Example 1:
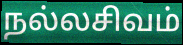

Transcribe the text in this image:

நல்லசிவம்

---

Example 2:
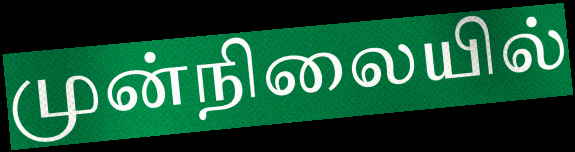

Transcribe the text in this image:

முன்நிலையில்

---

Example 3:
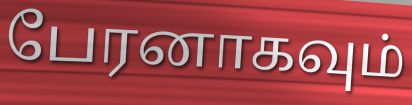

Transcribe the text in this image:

பேரனாகவும்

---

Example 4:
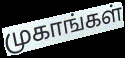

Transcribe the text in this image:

முகாங்கள்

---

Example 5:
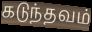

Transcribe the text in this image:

கடுந்தவம்